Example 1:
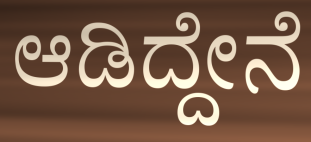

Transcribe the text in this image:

ಆಡಿದ್ದೇನೆ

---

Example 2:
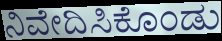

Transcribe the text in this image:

ನಿವೇದಿಸಿಕೊಂಡು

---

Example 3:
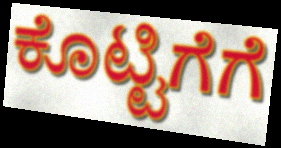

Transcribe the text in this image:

ಕೊಟ್ಟಿಗೆಗೆ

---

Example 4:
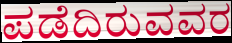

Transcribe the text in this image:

ಪಡೆದಿರುವವರ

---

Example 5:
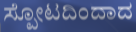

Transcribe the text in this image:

ಸ್ಪೋಟದಿಂದಾದ